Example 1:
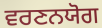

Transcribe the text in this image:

ਵਰਣਨਯੋਗ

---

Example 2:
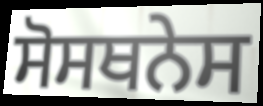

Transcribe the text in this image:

ਸੋਸਥਨੇਸ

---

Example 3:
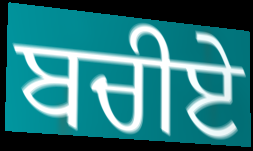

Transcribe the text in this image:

ਬਚੀਏ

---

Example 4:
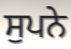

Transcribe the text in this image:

ਸੁਪਨੇ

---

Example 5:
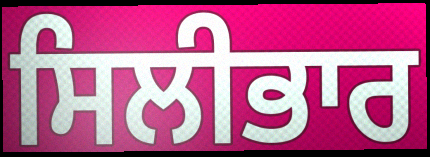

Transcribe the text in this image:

ਸਿਲੀਭਾਰ